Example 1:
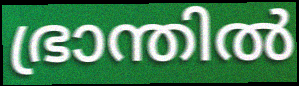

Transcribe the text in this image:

ഭ്രാന്തിൽ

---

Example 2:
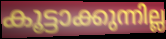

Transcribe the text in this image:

കൂട്ടാക്കുന്നില്ല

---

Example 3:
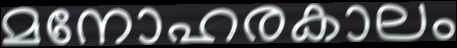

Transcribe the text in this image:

മനോഹരകാലം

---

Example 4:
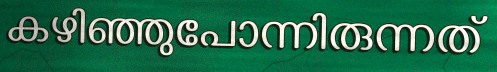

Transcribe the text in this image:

കഴിഞ്ഞുപോന്നിരുന്നത്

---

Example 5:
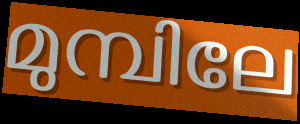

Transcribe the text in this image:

മുമ്പിലേ